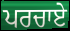
ਪਰਚਾਏ